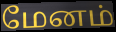
மேனம்